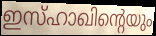
ഇസ്ഹാഖിന്റെയും